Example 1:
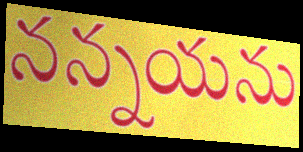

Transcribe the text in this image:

నన్నయను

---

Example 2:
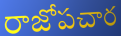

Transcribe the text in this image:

రాజోపచార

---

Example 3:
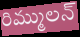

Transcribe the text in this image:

రిమ్ములన్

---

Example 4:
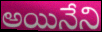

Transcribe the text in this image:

అయినేని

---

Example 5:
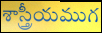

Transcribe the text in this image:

శాస్త్రీయముగ